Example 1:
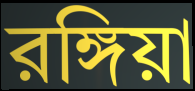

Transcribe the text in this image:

রঙ্গিয়া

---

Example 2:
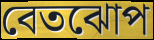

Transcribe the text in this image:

বেতঝোপ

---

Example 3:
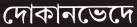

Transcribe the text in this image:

দোকানভেদে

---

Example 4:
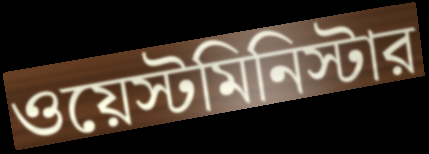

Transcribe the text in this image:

ওয়েস্টমিনিস্টার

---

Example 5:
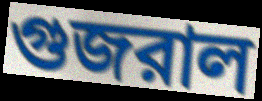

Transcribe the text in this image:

গুজরাল